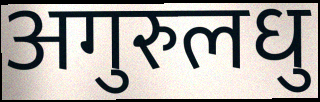
अगुरुलधु